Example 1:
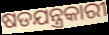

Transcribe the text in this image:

ଷଡଯନ୍ତ୍ରକାରୀ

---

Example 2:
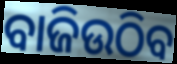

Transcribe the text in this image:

ବାଜିଉଠିବ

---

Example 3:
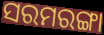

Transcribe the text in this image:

ସରମରଙ୍ଗା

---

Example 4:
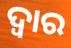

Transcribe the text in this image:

ଦ୍ବାର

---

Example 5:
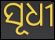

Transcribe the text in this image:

ସୂଧୀ